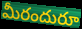
మీరందురూ